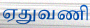
ஏதுவணி